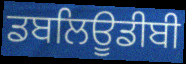
ਡਬਲਿਊਡੀਬੀ